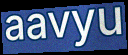
aavyu